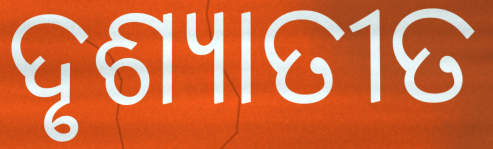
ଦୃଶ୍ୟାତୀତ